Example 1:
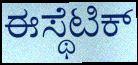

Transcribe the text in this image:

ಈಸ್ಥೆಟಿಕ್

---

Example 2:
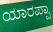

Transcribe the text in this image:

ಯಾರಪ್ಪಾ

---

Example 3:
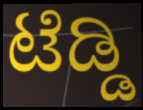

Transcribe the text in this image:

ಟೆಡ್ಡಿ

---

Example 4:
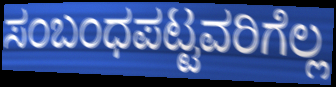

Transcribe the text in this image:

ಸಂಬಂಧಪಟ್ಟವರಿಗೆಲ್ಲ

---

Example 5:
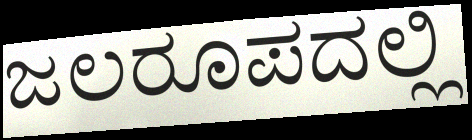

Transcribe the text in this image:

ಜಲರೂಪದಲ್ಲಿ